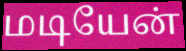
மடியேன்